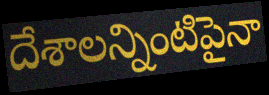
దేశాలన్నింటిపైనా